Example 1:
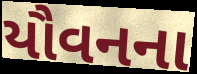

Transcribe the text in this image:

યૌવનના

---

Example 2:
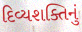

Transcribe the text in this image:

દિવ્યશક્તિનું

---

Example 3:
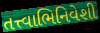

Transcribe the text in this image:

તત્ત્વાભિનિવેશી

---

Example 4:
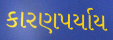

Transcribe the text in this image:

કારણપર્યાય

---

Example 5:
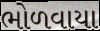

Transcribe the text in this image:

ભોળવાયા